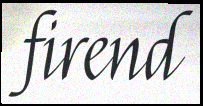
firend